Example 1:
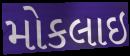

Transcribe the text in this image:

મોકલાઇ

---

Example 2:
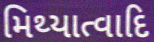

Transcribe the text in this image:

મિથ્યાત્વાદિ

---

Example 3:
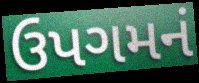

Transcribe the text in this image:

ઉપગમનં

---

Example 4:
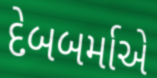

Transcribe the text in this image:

દેબબર્માએ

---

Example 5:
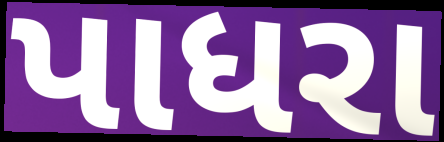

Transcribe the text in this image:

પાધરા